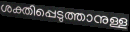
ശക്തിപ്പെടുത്താനുള്ള